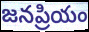
జనప్రియం